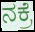
ನಕ್ರೆ